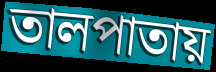
তালপাতায়